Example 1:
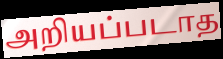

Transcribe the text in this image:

அறியப்படாத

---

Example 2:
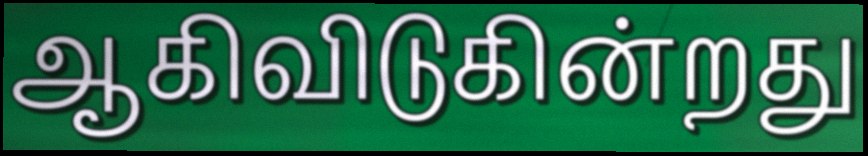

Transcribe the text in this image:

ஆகிவிடுகின்றது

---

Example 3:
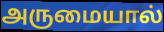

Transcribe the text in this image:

அருமையால்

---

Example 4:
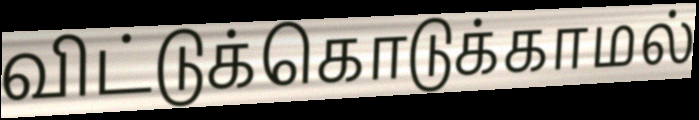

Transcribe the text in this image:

விட்டுக்கொடுக்காமல்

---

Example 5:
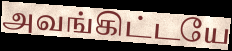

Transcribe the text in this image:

அவங்கிட்டயே